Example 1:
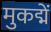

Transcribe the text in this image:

मुकद्में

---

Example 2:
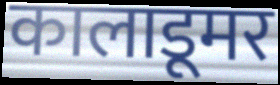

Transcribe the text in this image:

कालाडूमर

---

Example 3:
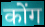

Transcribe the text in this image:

कोंग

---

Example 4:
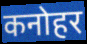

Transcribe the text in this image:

कनोहर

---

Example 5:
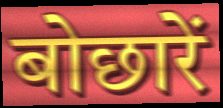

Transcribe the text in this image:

बोछारें